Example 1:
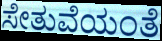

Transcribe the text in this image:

ಸೇತುವೆಯಂತೆ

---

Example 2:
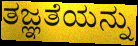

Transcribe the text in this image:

ತಜ್ಞತೆಯನ್ನು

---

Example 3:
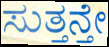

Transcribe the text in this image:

ಸುತ್ತನ್ತೇ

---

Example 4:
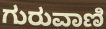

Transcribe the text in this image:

ಗುರುವಾಣಿ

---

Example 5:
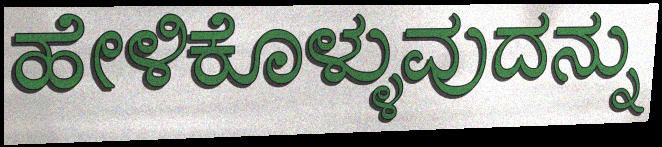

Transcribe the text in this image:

ಹೇಳಿಕೊಳ್ಳುವುದನ್ನು